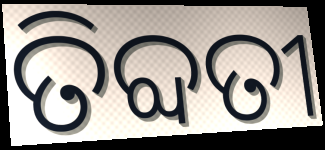
ତିବ୍ଦତୀ